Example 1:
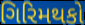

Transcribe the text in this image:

ગિરિમથકો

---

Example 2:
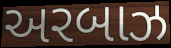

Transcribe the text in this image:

અરબાઝ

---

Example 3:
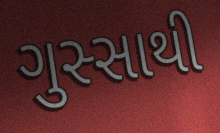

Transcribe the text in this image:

ગુસ્સાથી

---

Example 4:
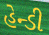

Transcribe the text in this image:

હેન્ડી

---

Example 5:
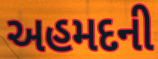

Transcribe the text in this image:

અહમદની